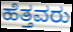
ಹೆತ್ತವರು